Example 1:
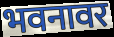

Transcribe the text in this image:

भवनावर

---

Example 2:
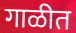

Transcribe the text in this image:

गाळीत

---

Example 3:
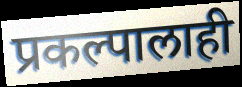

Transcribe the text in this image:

प्रकल्पालाही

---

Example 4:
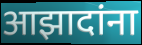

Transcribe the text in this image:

आझादांना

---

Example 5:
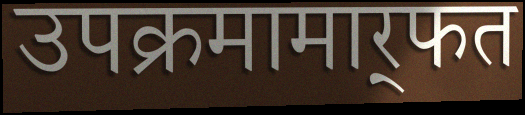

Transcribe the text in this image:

उपक्रमामार्फत